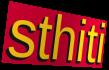
sthiti